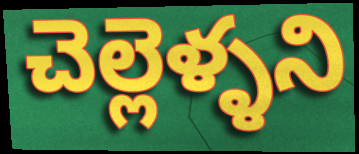
చెల్లెళ్ళని